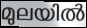
മുലയിൽ